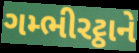
ગમ્ભીરટ્ઠાને